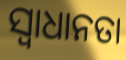
ସ୍ୱାଧାନତା